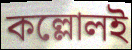
কল্লোলই